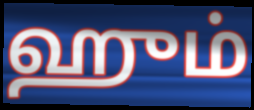
ஹும்